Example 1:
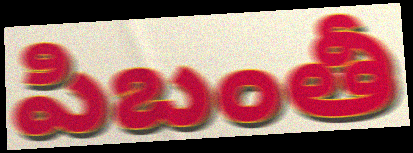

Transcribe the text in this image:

పిబంతీ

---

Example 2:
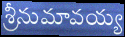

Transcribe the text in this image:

శ్రీనుమావయ్య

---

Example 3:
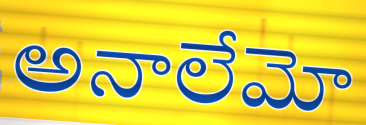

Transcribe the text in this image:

అనాలేమో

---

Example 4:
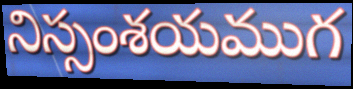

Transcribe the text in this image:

నిస్సంశయముగ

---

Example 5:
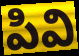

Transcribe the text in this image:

పివి